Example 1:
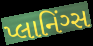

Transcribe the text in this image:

પ્લાનિંગ્સ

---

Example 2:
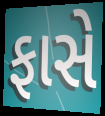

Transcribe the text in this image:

ફાસે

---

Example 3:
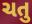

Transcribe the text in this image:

ચતુ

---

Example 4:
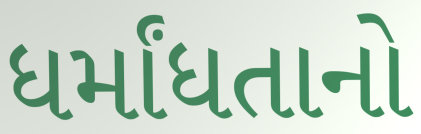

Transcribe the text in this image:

ધર્માંધતાનો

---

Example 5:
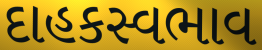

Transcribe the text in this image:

દાહકસ્વભાવ